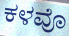
ಕಳವೊ